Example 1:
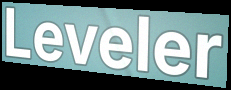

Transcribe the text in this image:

Leveler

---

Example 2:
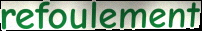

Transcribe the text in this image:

refoulement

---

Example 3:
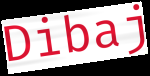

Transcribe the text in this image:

Dibaj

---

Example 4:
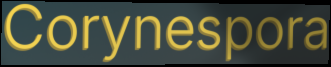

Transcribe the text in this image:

Corynespora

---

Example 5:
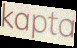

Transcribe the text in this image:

kapta